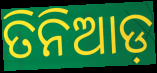
ତିନିଆଡ଼